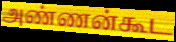
அண்ணன்கூட